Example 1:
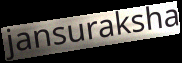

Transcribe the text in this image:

jansuraksha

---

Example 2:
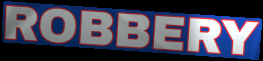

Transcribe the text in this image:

ROBBERY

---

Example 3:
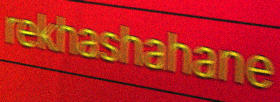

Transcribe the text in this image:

rekhashahane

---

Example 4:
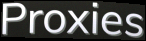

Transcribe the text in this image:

Proxies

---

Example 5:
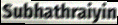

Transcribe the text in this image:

Subhathraiyin